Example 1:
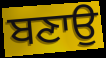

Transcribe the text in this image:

ਬਣਾਉ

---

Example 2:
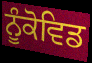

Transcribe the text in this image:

ਨੂੰਕੋਵਿਡ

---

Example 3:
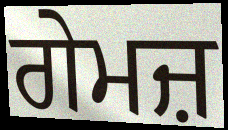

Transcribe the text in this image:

ਗੇਮਜ਼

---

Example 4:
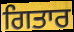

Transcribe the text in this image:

ਗਿਤਾਰ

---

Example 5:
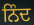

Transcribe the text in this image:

ਨਿੰਦ